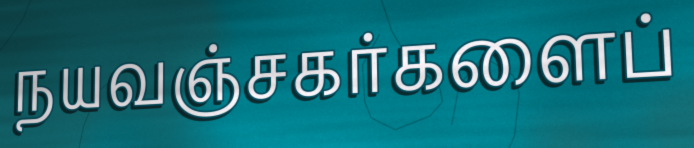
நயவஞ்சகர்களைப்